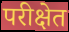
परीक्षेत